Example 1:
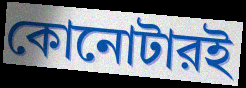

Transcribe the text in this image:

কোনোটারই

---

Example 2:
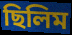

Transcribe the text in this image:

ছিলিম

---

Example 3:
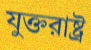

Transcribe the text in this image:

যুক্তরাষ্ট্র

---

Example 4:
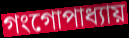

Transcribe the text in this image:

গংগোপাধ্যায়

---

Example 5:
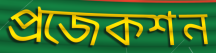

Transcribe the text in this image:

প্রজেকশন